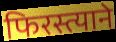
फिरस्त्याने